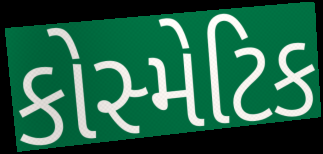
કોસ્મેટિક